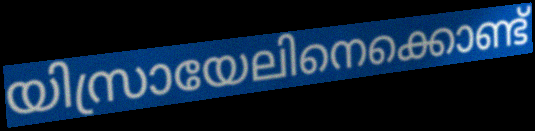
യിസ്രായേലിനെക്കൊണ്ട്